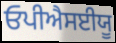
ਓਪੀਐਸਈਯੂ